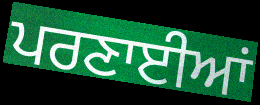
ਪਰਣਾਈਆਂ